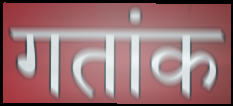
गतांक